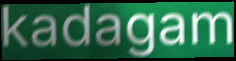
kadagam